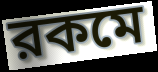
রকমে